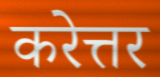
करेत्तर